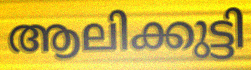
ആലിക്കുട്ടി